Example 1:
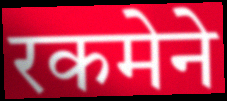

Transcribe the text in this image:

रकमेने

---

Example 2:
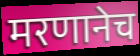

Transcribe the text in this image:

मरणानेच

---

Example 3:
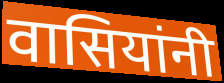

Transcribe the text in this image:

वासियांनी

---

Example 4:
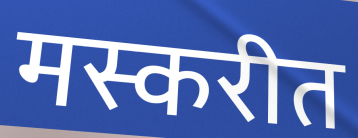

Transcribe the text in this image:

मस्करीत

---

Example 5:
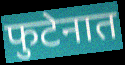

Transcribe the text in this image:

फुटेनात